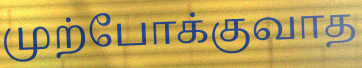
முற்போக்குவாத